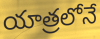
యాత్రలోనే